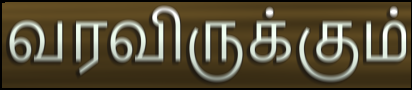
வரவிருக்கும்